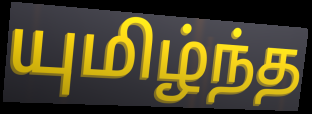
யுமிழ்ந்த